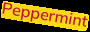
Peppermint